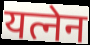
यत्नेन